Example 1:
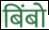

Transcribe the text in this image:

बिंबो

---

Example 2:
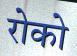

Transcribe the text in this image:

रोको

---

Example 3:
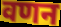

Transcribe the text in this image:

वणन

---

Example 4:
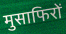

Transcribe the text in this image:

मुसाफिरों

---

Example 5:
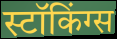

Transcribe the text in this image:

स्टॉकिंग्स